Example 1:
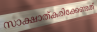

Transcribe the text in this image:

സാക്ഷാത്കരിക്കേണ്ടത്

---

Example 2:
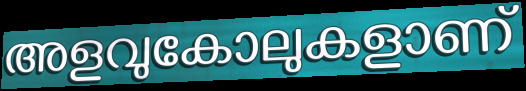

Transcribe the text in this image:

അളവുകോലുകളാണ്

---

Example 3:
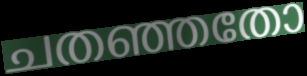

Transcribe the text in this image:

ചതഞ്ഞതോ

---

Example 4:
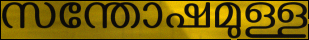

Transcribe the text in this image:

സന്തോഷമുള്ള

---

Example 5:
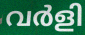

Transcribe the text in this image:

വർളി